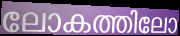
ലോകത്തിലോ